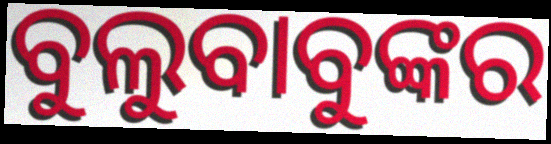
ବୁଲୁବାବୁଙ୍କର